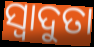
ସ୍ୱାଦୁତା